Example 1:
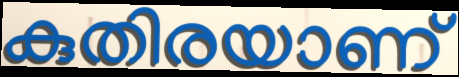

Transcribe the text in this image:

കുതിരയാണ്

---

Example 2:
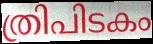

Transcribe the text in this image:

ത്രിപിടകം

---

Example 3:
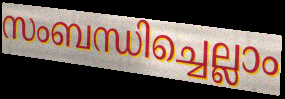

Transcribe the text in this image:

സംബന്ധിച്ചെല്ലാം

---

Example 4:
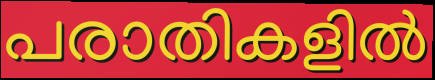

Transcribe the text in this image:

പരാതികളിൽ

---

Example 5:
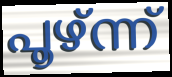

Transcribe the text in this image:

പൂഴ്ന്ന്